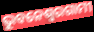
ଭୁବନେଶ୍ୱରଗାମୀ